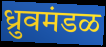
ध्रुवमंडळ